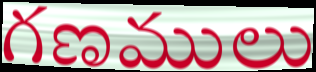
గణములు